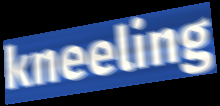
kneeling